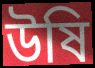
উষি